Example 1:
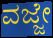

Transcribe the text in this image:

ವಜ್ಜೇ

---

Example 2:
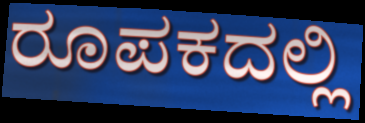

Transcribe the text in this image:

ರೂಪಕದಲ್ಲಿ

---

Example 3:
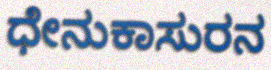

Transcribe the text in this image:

ಧೇನುಕಾಸುರನ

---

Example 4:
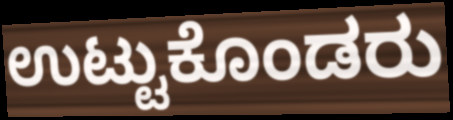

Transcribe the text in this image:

ಉಟ್ಟುಕೊಂಡರು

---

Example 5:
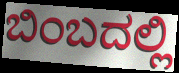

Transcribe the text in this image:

ಬಿಂಬದಲ್ಲಿ